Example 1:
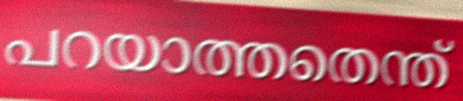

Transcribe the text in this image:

പറയാത്തതെന്ത്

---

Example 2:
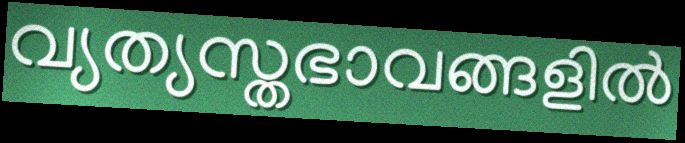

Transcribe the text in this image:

വ്യത്യസ്തഭാവങ്ങളിൽ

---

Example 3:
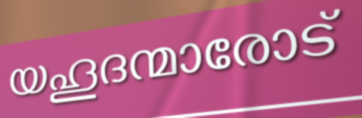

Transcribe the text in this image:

യഹൂദന്മാരോട്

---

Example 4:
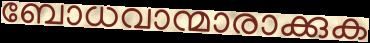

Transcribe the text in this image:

ബോധവാന്മാരാക്കുക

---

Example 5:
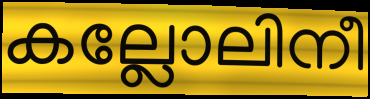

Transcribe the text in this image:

കല്ലോലിനീ